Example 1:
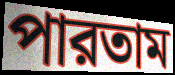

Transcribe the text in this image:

পারতাম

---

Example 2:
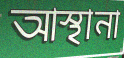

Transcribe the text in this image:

আস্থানা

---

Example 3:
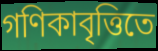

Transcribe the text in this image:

গণিকাবৃত্তিতে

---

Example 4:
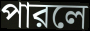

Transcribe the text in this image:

পারলে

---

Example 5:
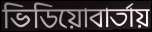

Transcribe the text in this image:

ভিডিয়োবার্তায়